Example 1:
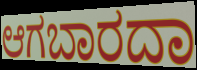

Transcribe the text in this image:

ಆಗಬಾರದಾ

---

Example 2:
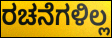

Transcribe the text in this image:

ರಚನೆಗಳಿಲ್ಲ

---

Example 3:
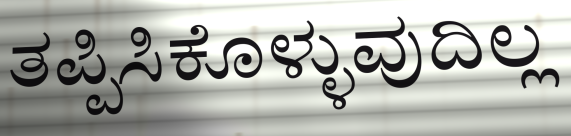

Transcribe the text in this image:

ತಪ್ಪಿಸಿಕೊಳ್ಳುವುದಿಲ್ಲ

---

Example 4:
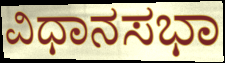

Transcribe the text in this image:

ವಿಧಾನಸಭಾ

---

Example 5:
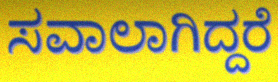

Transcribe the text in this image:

ಸವಾಲಾಗಿದ್ದರೆ